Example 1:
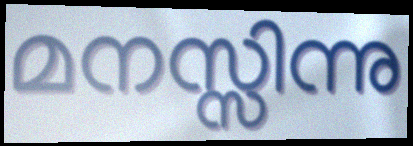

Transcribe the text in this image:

മനസ്സിന്നു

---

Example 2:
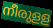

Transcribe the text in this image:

നീരുളള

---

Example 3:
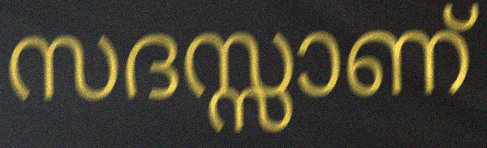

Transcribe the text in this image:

സദസ്സാണ്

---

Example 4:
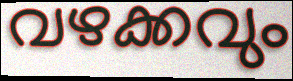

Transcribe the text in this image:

വഴക്കവും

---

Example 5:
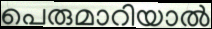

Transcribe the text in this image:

പെരുമാറിയാൽ